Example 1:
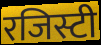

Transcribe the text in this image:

रजिस्टी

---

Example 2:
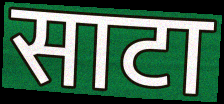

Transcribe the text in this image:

साटा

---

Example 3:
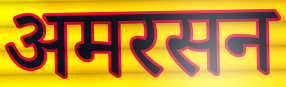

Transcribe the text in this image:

अमरसन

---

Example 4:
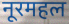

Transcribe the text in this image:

नूरमहल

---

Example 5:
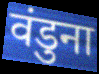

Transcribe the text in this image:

वंडुना